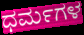
ಧರ್ಮಗಳ